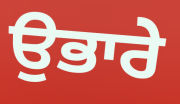
ਉਭਾਰੇ